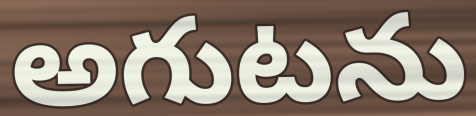
అగుటను